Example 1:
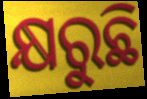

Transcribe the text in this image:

କ୍ଷରୁଛି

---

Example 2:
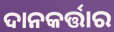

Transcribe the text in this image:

ଦାନକର୍ତ୍ତାର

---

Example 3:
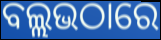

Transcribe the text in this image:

ବଲ୍ଲଭଠାରେ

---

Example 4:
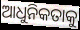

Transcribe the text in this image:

ଆଧୁନିକତାକୁ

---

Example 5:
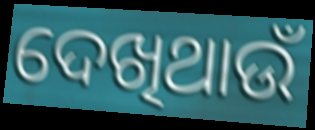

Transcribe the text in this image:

ଦେଖିଥାଉଁ